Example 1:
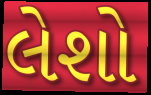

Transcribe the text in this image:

લેશો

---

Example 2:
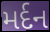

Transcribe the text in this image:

મર્દન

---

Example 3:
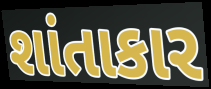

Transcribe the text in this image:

શાંતાકાર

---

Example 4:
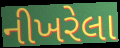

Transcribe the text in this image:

નીખરેલા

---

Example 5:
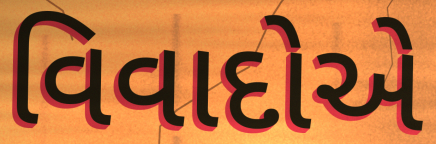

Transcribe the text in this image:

વિવાદોએ